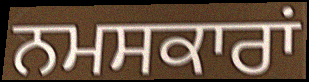
ਨਮਸਕਾਰਾਂ